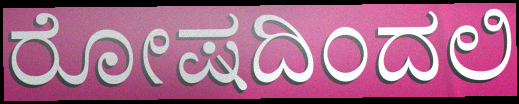
ರೋಷದಿಂದಲಿ